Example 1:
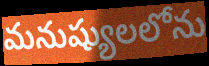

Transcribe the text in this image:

మనుష్యులలోను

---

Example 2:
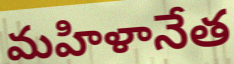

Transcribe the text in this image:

మహిళానేత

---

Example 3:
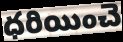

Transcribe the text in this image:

ధరియించె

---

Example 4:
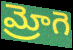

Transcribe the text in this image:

మ్రోగె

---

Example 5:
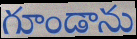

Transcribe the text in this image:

గూండాను